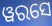
ୱରସେ